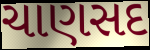
ચાણસદ